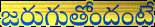
జరుగుతోందంటే